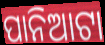
ପାନିଆଟା